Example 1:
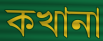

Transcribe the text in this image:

কখানা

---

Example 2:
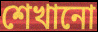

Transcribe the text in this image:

শেখানো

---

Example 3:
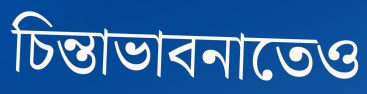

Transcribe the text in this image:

চিন্তাভাবনাতেও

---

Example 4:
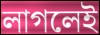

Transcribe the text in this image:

লাগলেই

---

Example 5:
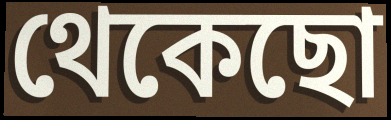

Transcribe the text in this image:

থেকেছো